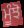
ਮੂੰਝੋ